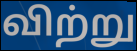
விற்று